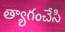
త్యాగంచేసి